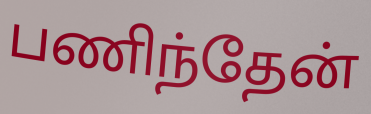
பணிந்தேன்